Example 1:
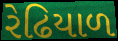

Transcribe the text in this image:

રેઢિયાળ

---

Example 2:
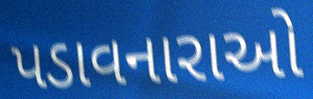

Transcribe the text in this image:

પડાવનારાઓ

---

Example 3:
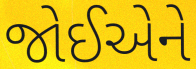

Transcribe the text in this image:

જોઈએને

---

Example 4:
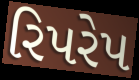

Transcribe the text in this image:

રિપરેપ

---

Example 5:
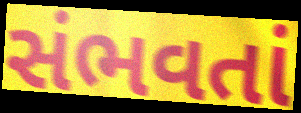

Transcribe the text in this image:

સંભવતાં